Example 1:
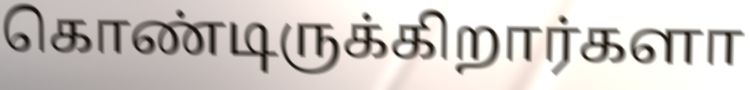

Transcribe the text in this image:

கொண்டிருக்கிறார்களா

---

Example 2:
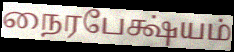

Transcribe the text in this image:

நைரபேக்ஷ்யம்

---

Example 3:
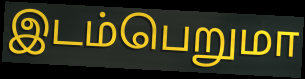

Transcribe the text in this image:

இடம்பெறுமா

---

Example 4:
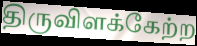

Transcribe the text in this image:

திருவிளக்கேற்ற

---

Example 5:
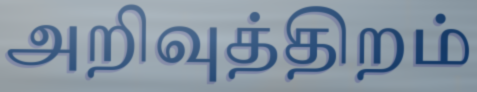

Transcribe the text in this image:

அறிவுத்திறம்